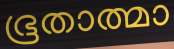
ഭൂതാത്മാ